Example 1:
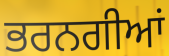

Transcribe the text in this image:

ਭਰਨਗੀਆਂ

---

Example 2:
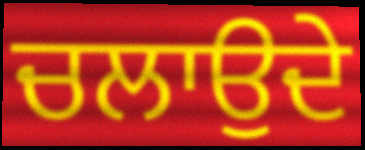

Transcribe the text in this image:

ਚਲਾਉਦੇ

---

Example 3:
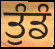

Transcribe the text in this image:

ਤੁੰਡੰ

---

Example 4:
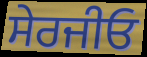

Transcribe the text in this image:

ਸੇਰਜੀਓ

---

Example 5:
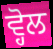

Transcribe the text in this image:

ਵ੍ਹੋਲ